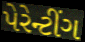
પેરેન્ટીંગ